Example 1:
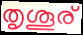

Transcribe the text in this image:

തൃശൂര്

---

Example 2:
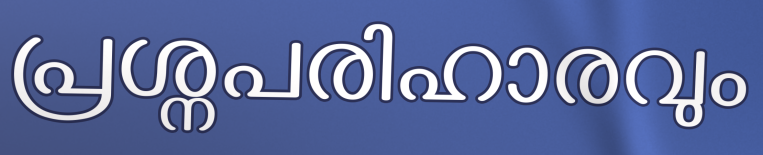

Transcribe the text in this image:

പ്രശ്നപരിഹാരവും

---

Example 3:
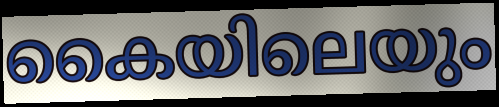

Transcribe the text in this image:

കൈയിലെയും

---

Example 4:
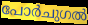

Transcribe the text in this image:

പോർചുഗൽ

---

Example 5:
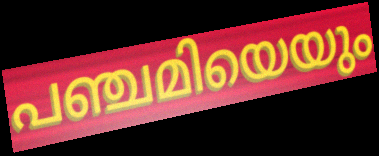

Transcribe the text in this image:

പഞ്ചമിയെയും